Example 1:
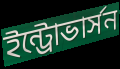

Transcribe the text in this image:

ইন্ট্রোভার্সন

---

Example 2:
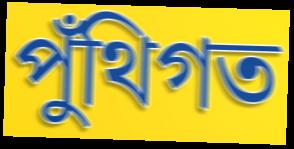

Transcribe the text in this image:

পুঁথিগত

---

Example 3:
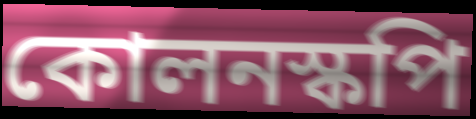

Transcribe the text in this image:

কোলনস্কপি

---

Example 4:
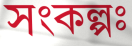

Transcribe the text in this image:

সংকল্পঃ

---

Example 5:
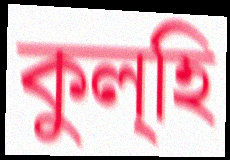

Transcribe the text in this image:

কুল্হি